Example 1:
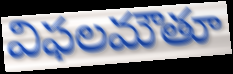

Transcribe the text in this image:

విఫలమౌతూ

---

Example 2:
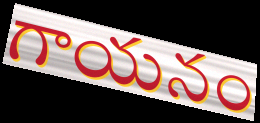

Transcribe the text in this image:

గాయనం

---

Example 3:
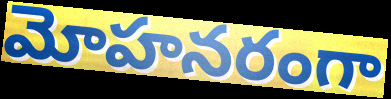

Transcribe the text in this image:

మోహనరంగా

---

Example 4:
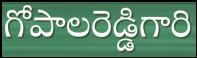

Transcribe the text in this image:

గోపాలరెడ్డిగారి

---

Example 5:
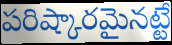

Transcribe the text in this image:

పరిష్కారమైనట్టే